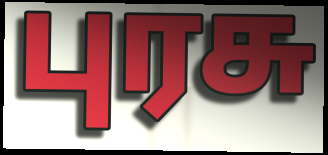
புரசு